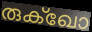
രുക്ഖോ